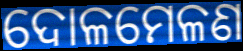
ଦୋଳମେଳଣ